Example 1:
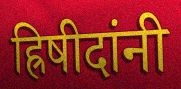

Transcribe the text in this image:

ह्रिषीदांनी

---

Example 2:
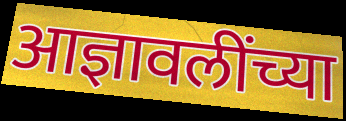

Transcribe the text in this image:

आज्ञावलींच्या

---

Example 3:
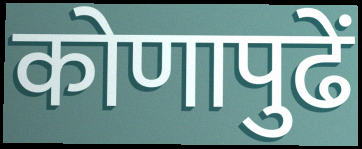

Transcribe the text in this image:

कोणापुढें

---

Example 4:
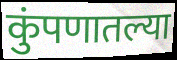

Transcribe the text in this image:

कुंपणातल्या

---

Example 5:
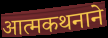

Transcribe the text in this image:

आत्मकथनाने